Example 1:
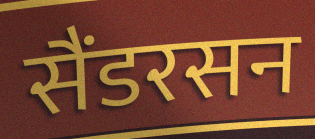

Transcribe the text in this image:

सैंडरसन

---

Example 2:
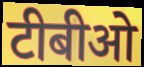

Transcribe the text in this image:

टीबीओ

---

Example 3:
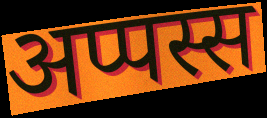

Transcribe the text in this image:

अप्पस्स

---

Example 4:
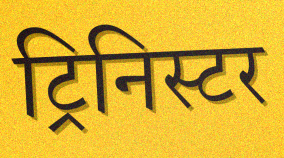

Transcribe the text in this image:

ट्रिनिस्टर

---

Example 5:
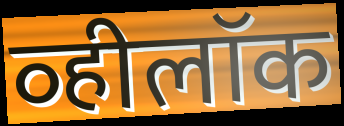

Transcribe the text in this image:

व्हीलॉक